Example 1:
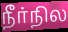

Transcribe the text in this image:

நீர்நில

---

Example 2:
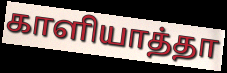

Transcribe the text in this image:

காளியாத்தா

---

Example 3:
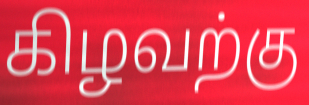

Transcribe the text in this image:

கிழவற்கு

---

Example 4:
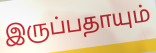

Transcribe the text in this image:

இருப்பதாயும்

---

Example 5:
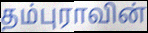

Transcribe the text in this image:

தம்புராவின்